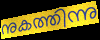
നുകത്തിന്നു